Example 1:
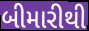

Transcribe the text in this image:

બીમારીથી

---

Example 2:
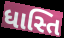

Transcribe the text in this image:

ધાસ્તિ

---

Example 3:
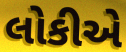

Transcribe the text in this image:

લોકીએ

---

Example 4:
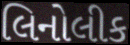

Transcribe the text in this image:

લિનોલીક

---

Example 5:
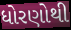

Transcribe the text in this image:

ધોરણોથી